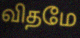
விதமே